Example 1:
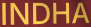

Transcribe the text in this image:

INDHA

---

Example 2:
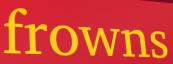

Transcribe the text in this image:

frowns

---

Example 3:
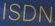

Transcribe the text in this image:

ISDN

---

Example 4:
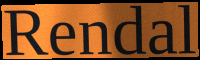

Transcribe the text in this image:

Rendal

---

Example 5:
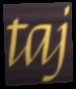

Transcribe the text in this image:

taj